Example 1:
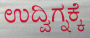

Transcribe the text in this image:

ಉದ್ವಿಗ್ನಕ್ಕೆ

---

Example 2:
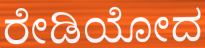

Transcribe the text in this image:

ರೇಡಿಯೋದ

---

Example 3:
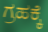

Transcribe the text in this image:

ಗ್ರಹಕ್ಕೆ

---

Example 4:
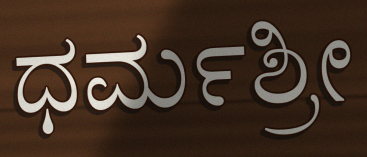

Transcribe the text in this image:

ಧರ್ಮಶ್ರೀ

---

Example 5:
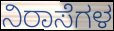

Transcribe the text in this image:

ನಿರಾಸೆಗಳ